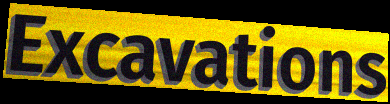
Excavations